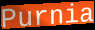
Purnia